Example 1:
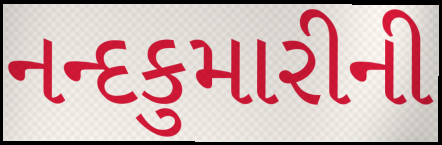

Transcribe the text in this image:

નન્દકુમારીની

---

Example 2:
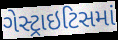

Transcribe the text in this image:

ગેસ્ટ્રાઇટિસમાં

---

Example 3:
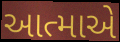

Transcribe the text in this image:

આત્માએ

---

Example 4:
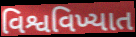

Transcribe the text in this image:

વિશ્વવિખ્યાત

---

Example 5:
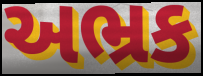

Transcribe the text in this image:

અભ્રક